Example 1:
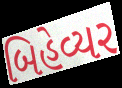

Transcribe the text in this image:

બિહેવ્યર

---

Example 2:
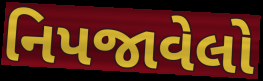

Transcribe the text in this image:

નિપજાવેલો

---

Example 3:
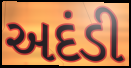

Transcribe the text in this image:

અદંડી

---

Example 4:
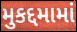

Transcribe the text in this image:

મુકદ્દમામાં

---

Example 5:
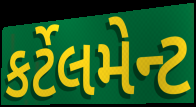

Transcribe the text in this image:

કર્ટેલમેન્ટ